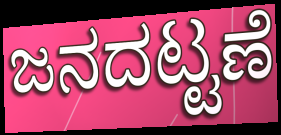
ಜನದಟ್ಟಣೆ